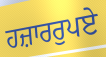
ਹਜ਼ਾਰਰੁਪਏ